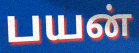
பயன்